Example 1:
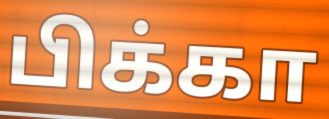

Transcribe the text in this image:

பிக்கா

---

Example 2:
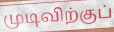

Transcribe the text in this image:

முடிவிற்குப்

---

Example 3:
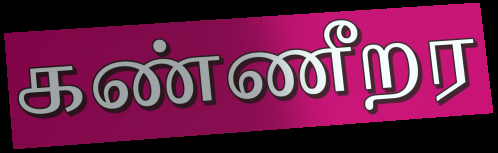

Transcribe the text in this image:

கண்ணீறர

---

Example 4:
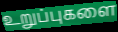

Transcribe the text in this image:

உறுப்புகளை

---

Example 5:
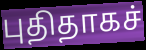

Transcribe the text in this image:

புதிதாகச்